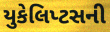
યુકેલિપ્ટસની